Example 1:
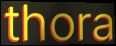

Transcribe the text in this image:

thora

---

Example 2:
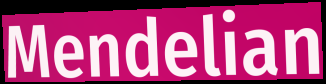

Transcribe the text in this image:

Mendelian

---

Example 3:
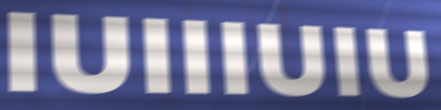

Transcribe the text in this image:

IUIIIUIU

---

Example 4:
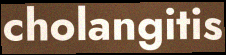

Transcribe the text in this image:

cholangitis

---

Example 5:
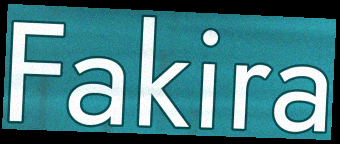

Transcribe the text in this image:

Fakira